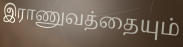
இராணுவத்தையும்